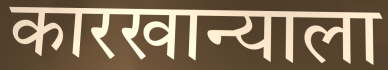
कारखान्याला